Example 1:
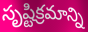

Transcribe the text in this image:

సృష్టిక్రమాన్ని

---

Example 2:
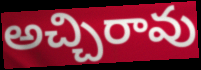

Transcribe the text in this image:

అచ్చిరావు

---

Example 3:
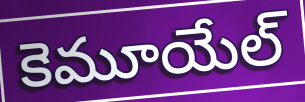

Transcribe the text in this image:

కెమూయేల్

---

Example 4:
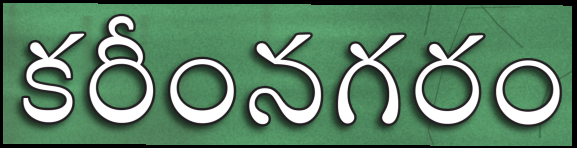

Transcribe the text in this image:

కరీంనగరం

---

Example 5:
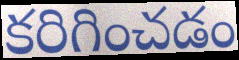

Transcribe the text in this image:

కరిగించడం